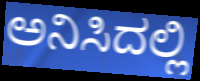
ಅನಿಸಿದಲ್ಲಿ